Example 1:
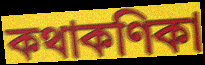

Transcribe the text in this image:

কথাকণিকা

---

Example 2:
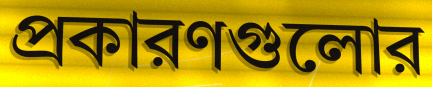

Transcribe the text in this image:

প্রকারণগুলোর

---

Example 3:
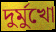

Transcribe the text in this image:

দুর্মুখো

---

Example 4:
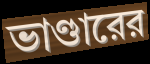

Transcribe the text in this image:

ভাণ্ডারের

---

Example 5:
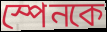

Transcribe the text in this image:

স্পেনকে